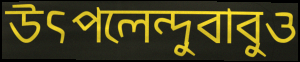
উৎপলেন্দুবাবুও